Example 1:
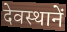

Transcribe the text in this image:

देवस्थानें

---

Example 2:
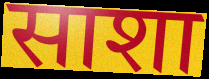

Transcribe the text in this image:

साशा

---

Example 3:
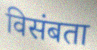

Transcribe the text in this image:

विसंबता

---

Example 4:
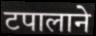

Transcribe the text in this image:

टपालाने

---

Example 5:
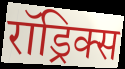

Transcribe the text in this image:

रॉड्रिक्स